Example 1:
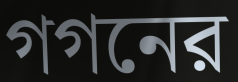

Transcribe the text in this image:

গগনের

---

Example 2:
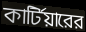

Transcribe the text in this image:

কার্টিয়ারের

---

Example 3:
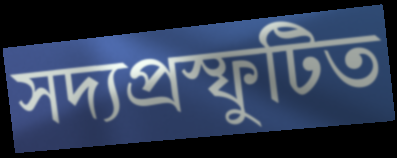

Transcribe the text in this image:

সদ্যপ্রস্ফুটিত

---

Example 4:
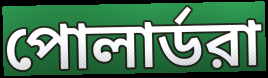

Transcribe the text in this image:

পোলার্ডরা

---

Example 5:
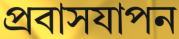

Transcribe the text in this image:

প্রবাসযাপন